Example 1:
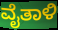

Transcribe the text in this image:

ವೈತಾಳಿ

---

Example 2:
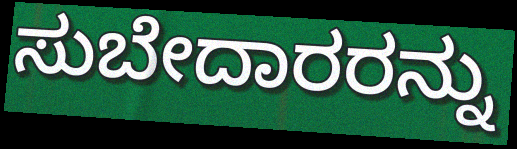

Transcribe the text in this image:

ಸುಬೇದಾರರನ್ನು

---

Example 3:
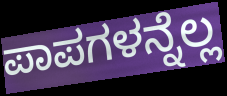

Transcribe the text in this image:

ಪಾಪಗಳನ್ನೆಲ್ಲ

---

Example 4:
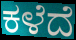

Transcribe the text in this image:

ಕಳೆದೆ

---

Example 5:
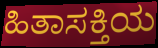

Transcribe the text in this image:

ಹಿತಾಸಕ್ತಿಯ